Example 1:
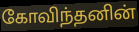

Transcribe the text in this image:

கோவிந்தனின்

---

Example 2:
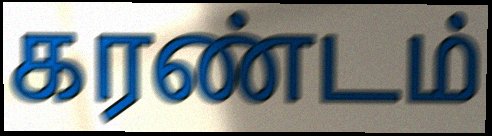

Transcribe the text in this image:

கரண்டம்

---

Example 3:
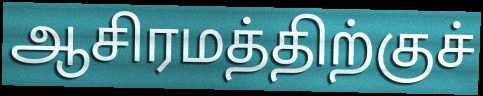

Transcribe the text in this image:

ஆசிரமத்திற்குச்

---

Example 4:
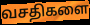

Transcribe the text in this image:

வசதிகளை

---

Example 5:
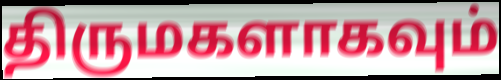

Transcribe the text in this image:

திருமகளாகவும்